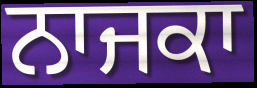
ਨਾਜਕਾ